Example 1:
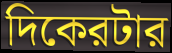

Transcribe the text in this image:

দিকেরটার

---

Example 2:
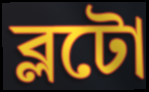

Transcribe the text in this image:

ব্লটো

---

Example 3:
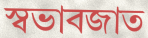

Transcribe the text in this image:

স্বভাবজাত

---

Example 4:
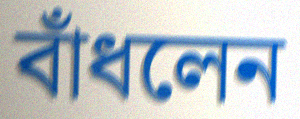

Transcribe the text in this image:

বাঁধলেন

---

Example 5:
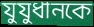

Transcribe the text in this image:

যুযুধানকে